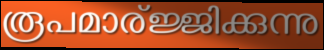
രൂപമാര്ജ്ജിക്കുന്നു